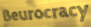
Beurocracy